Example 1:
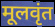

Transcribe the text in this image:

मूलवृंत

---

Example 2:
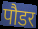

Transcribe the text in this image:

पौडर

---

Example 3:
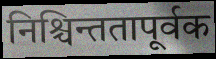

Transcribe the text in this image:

निश्चिन्ततापूर्वक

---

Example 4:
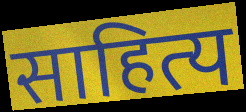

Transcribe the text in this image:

साहित्‍य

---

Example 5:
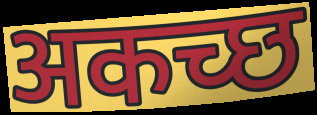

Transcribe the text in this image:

अकच्छ